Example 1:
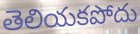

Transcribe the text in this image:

తెలియకపోదు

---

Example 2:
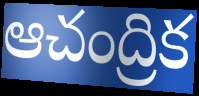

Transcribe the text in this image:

ఆచంద్రిక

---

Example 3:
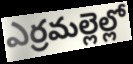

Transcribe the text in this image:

ఎర్రమల్లెల్లో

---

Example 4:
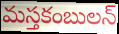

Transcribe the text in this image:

మస్తకంబులన్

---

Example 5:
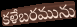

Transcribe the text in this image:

కళేబరమును